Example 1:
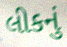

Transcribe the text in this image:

લીકનું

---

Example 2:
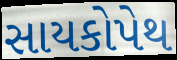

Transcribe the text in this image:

સાયકોપેથ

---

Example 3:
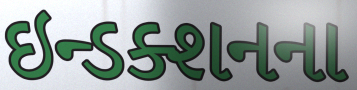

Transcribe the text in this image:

ઇન્ડક્શનના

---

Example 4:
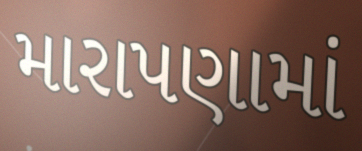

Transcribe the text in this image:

મારાપણામાં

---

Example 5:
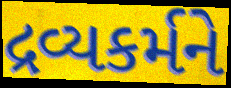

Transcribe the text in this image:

દ્રવ્યકર્મને